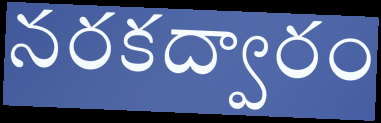
నరకద్వారం